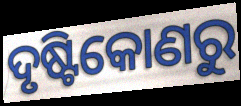
ଦୃଷ୍ଟିକୋଣରୁ